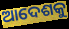
ଆଦେଶକୁ